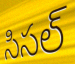
సిసల్